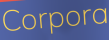
Corpora